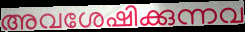
അവശേഷിക്കുന്നവ